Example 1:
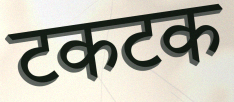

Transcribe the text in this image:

टकटक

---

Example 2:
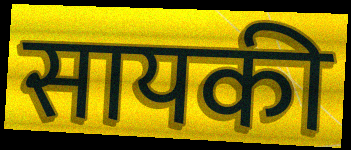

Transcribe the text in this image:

सायकी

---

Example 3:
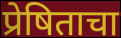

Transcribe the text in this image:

प्रेषिताचा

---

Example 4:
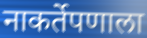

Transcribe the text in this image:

नाकर्तेपणाला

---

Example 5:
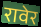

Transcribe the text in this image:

रावेर